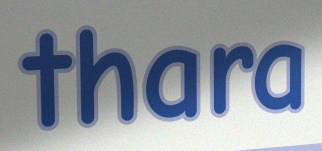
thara